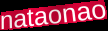
nataonao